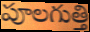
పూలగుత్తి